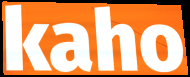
kaho